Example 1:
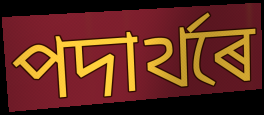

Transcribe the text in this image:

পদাৰ্থৰে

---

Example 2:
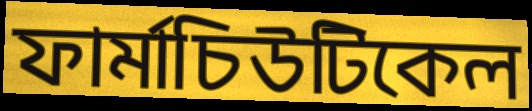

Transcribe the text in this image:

ফাৰ্মাচিউটিকেল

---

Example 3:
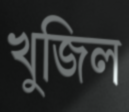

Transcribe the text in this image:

খুজিল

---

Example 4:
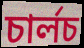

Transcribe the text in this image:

চাৰ্লচ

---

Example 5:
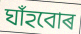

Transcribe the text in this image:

ঘাঁহবোৰ